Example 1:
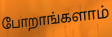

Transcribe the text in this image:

போறாங்களாம்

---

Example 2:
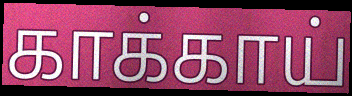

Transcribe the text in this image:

காக்காய்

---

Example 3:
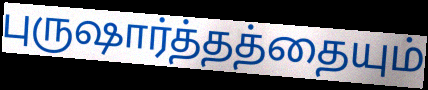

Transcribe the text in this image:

புருஷார்த்தத்தையும்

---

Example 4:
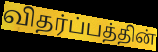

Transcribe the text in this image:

விதர்ப்பத்தின்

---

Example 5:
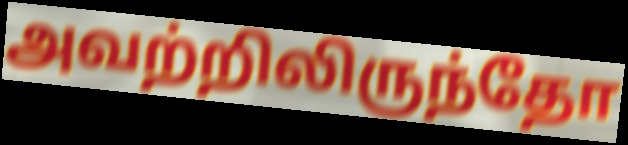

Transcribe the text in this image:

அவற்றிலிருந்தோ